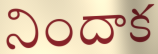
నిందాక